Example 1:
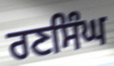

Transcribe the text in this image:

ਰਣਸਿੰਘ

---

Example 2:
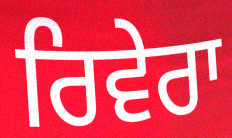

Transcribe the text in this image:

ਰਿਵੇਰਾ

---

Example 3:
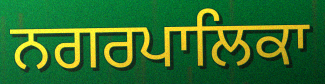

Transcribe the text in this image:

ਨਗਰਪਾਲਿਕਾ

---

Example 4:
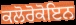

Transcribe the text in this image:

ਕਲੋਰੋਕੋਇਨ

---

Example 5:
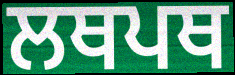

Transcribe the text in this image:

ਲਥਪਥ